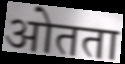
ओतता